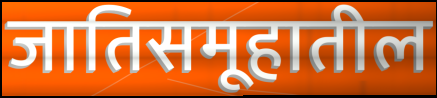
जातिसमूहातील